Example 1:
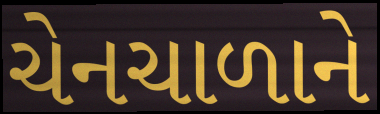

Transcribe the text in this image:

ચેનચાળાને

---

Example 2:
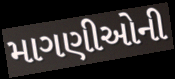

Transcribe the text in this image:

માગણીઓની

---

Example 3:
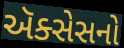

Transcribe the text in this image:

ઍક્સેસનો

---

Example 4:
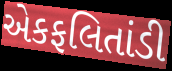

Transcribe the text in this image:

એકફલિતાંડી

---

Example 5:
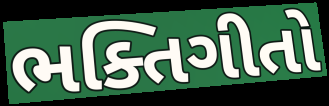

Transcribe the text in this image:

ભક્તિગીતો